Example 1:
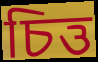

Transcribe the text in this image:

চিত্ত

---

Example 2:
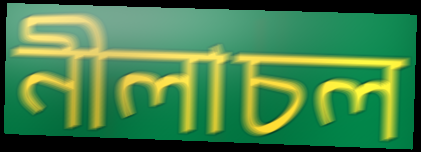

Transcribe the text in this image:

নীলাচল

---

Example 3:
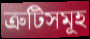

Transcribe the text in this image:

ত্ৰুটিসমূহ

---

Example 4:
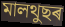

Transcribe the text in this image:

মালথুছৰ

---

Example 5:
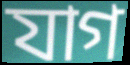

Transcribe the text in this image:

যাগ